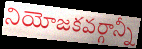
నియోజకవర్గాన్నీ